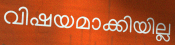
വിഷയമാക്കിയില്ല